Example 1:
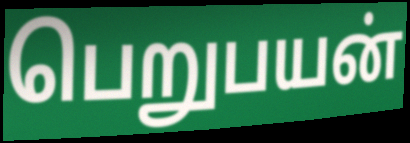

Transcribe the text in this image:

பெறுபயன்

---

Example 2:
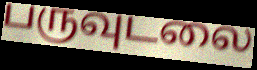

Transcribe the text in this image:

பருவுடலை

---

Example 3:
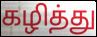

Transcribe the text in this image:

கழித்து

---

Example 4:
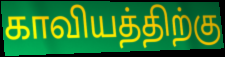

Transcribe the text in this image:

காவியத்திற்கு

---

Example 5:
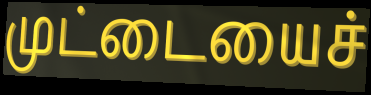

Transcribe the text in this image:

முட்டையைச்